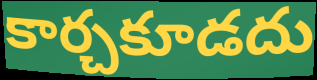
కార్చకూడదు